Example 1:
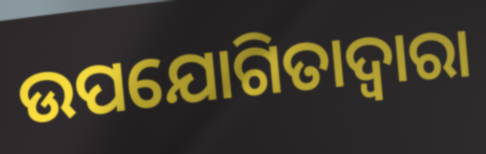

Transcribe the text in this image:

ଉପଯୋଗିତାଦ୍ୱାରା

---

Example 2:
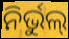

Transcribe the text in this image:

ନିର୍ଭୁଲ୍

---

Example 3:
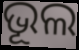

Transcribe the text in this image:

ଭୂଲ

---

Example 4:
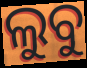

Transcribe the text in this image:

ଲୁବୁ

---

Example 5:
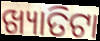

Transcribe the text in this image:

ଖ୍ୟାତିଟା